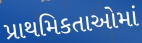
પ્રાથમિકતાઓમાં